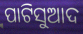
ପାଟିସୁଆଦ